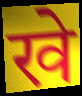
खे